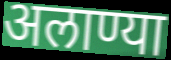
अलाण्या